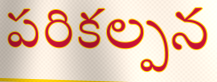
పరికల్పన